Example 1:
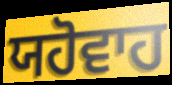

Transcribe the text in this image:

ਯਹੋਵਾਹ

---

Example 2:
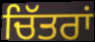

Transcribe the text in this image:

ਚਿੱਤਰਾਂ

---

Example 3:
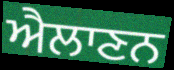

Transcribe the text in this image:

ਐਲਾਣਨ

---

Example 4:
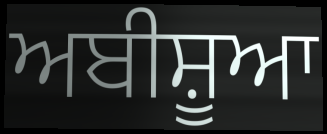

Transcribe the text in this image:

ਅਬੀਸ਼ੂਆ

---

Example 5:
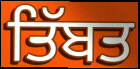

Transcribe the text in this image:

ਤਿੱਬਤ